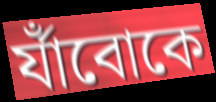
র্যাঁবোকে